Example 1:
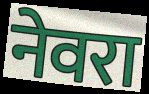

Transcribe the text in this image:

नेवरा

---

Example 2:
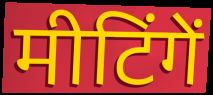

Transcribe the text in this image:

मीटिंगें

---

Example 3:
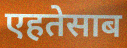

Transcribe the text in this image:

एहतेसाब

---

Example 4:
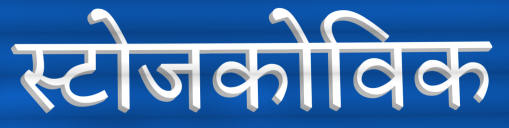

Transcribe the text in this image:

स्टोजकोविक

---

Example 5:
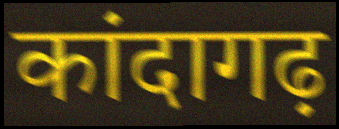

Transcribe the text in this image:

कांदागढ़